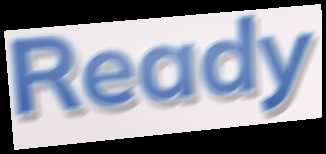
Ready